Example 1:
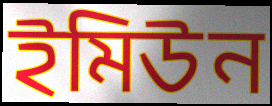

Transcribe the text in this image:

ইমিউন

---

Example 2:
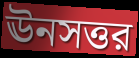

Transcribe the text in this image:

ঊনসত্তর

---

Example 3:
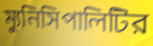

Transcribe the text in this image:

ম্যুনিসিপালিটির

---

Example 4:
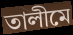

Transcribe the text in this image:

তালীমে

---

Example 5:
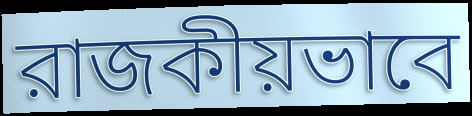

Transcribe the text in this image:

রাজকীয়ভাবে